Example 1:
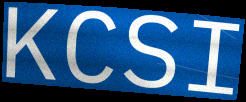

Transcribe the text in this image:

KCSI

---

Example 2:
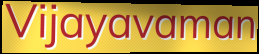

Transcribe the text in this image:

Vijayavaman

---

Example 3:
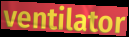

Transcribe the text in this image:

ventilator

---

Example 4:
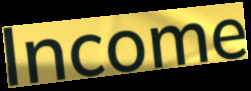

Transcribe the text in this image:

Income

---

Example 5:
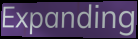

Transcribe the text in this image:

Expanding